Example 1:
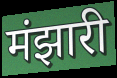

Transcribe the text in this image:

मंझारी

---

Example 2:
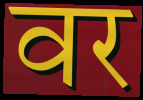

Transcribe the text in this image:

वर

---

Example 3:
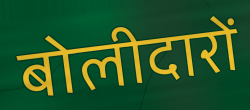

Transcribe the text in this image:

बोलीदारों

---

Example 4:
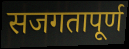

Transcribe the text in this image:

सजगतापूर्ण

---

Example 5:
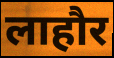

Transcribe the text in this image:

लाहौर